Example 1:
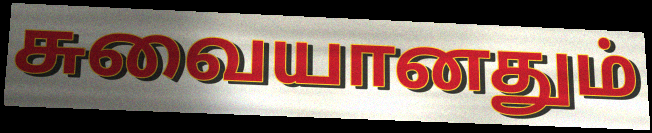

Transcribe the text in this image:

சுவையானதும்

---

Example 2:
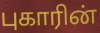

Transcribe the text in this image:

புகாரின்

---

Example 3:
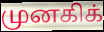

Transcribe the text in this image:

முனகிக்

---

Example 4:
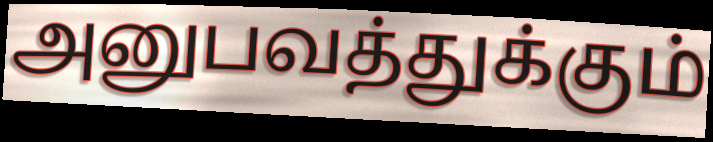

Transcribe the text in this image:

அனுபவத்துக்கும்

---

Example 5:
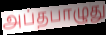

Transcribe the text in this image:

அப்தபாழுது